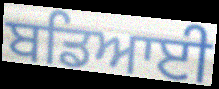
ਬਡਿਆਈ